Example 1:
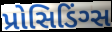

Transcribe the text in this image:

પ્રોસિડિંગ્સ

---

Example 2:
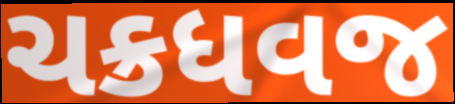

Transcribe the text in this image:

ચક્રધવજ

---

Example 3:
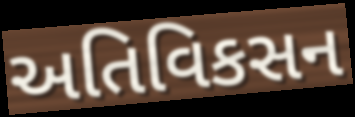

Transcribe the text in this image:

અતિવિકસન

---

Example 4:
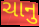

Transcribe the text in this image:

ચાનુ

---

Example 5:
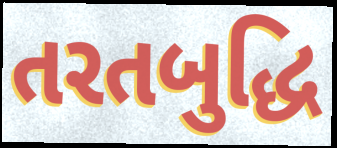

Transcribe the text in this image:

તરતબુદ્ધિ